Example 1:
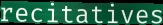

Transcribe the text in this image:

recitatives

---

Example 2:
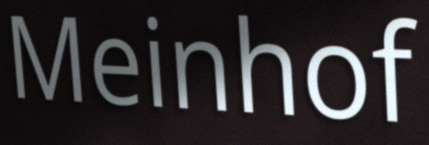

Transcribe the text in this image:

Meinhof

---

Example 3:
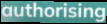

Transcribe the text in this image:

authorising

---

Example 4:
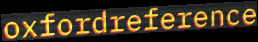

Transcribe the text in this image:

oxfordreference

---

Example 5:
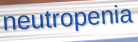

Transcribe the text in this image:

neutropenia